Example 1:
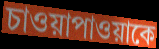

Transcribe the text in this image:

চাওয়াপাওয়াকে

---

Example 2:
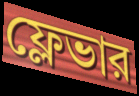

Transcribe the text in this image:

ফ্লেভার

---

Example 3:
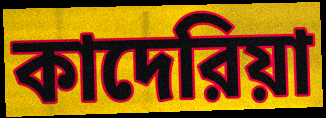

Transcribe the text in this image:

কাদেরিয়া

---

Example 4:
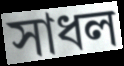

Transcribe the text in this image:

সাধল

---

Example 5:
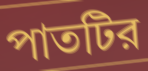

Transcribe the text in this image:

পাতটির